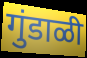
गुंडाळी